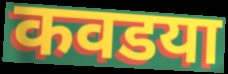
कवडया